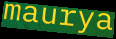
maurya